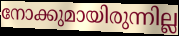
നോക്കുമായിരുന്നില്ല